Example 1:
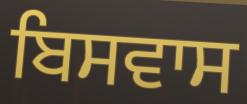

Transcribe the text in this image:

ਬਿਸਵਾਸ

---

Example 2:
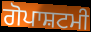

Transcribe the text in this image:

ਗੋਪਾਸ਼ਟਮੀ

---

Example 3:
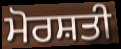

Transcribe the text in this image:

ਮੋਰਸ਼ਤੀ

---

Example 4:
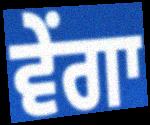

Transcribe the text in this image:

ਵੇਂਗਾ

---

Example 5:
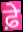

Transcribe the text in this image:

ਫ਼ੇ